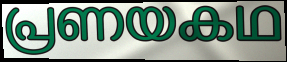
പ്രണയകഥ